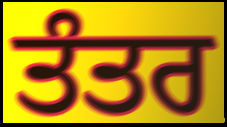
ਤੰਤਰ